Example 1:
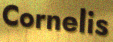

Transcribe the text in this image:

Cornelis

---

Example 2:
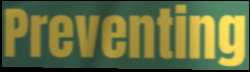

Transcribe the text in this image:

Preventing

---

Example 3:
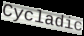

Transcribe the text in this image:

Cycladic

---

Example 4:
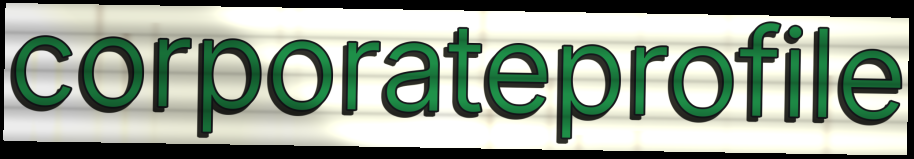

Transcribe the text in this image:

corporateprofile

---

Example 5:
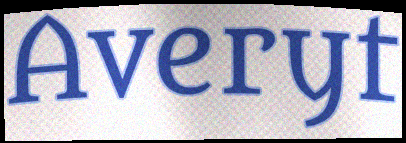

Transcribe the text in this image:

Averyt